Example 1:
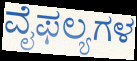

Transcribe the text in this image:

ವೈಫಲ್ಯಗಳ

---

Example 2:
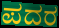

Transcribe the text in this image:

ಪದರ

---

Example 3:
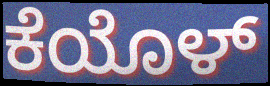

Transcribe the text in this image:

ಕೆಯೊಳ್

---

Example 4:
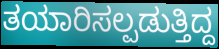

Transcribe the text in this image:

ತಯಾರಿಸಲ್ಪಡುತ್ತಿದ್ದ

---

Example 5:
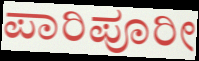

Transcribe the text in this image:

ಪಾರಿಪೂರೀ